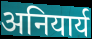
अनियार्य